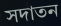
সদাতন